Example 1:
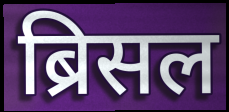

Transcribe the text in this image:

ब्रिसल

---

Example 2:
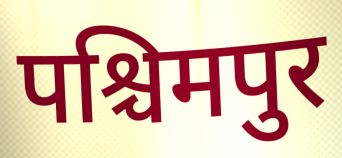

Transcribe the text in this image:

पश्चिमपुर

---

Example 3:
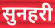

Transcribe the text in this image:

सुनहरी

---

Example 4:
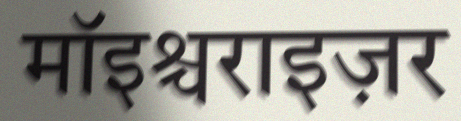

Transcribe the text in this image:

मॉइश्चराइज़र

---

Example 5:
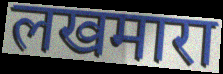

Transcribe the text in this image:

लखमारा